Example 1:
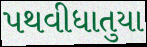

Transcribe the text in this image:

પથવીધાતુયા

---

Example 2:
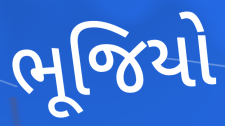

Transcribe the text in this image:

ભૂજિયો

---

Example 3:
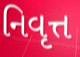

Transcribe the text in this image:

નિવૃત્ત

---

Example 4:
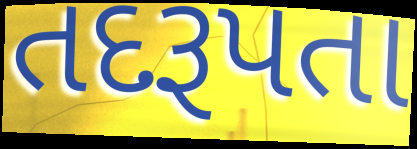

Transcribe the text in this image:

તદરૂપતા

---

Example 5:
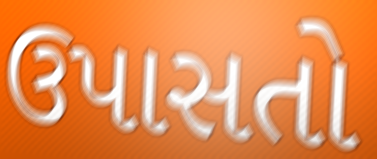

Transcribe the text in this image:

ઉપાસતો